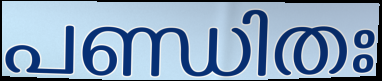
പണ്ഡിതഃ